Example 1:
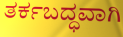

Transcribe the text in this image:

ತರ್ಕಬದ್ಧವಾಗಿ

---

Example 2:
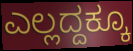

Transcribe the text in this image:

ಎಲ್ಲದ್ದಕ್ಕೂ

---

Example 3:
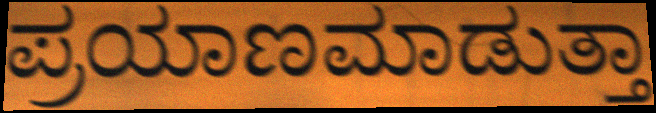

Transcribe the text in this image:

ಪ್ರಯಾಣಮಾಡುತ್ತಾ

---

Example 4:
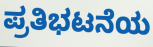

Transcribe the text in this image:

ಪ್ರತಿಭಟನೆಯ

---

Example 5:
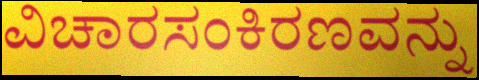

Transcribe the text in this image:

ವಿಚಾರಸಂಕಿರಣವನ್ನು